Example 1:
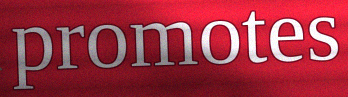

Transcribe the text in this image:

promotes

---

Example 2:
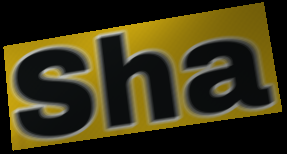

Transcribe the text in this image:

Sha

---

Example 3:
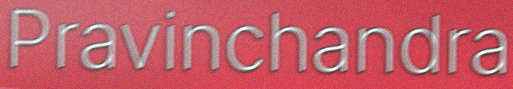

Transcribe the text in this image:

Pravinchandra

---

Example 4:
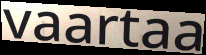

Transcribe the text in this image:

vaartaa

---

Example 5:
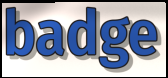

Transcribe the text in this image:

badge